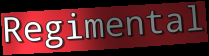
Regimental